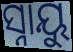
ସ୍ନାୟୁ